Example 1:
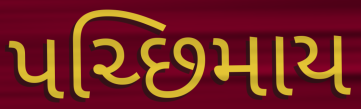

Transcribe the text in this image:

પચ્છિમાય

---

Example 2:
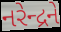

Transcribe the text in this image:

નરેન્દ્રને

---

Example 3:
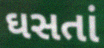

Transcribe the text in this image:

ઘસતાં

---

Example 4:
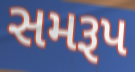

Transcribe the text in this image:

સમરૂપ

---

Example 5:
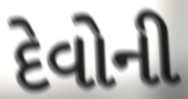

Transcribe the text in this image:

દેવોની